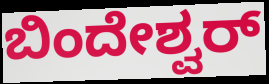
ಬಿಂದೇಶ್ವರ್